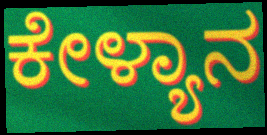
ಕೇಳ್ಯಾನ